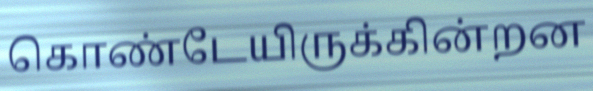
கொண்டேயிருக்கின்றன